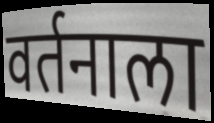
वर्तनाला